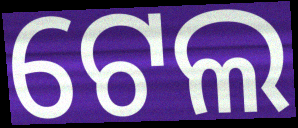
ଟେଲ